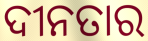
ଦୀନତାର